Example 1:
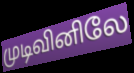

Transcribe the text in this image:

முடிவினிலே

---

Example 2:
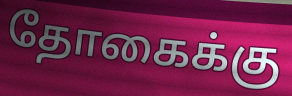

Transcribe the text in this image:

தோகைக்கு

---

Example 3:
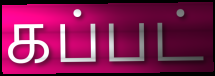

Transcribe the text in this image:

கப்பட்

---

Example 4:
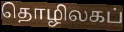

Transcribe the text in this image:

தொழிலகப்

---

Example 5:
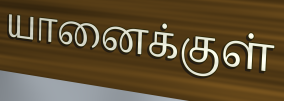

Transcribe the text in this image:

யானைக்குள்